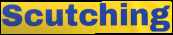
Scutching